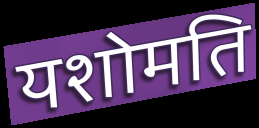
यशोमति